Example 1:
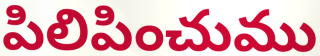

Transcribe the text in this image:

పిలిపించుము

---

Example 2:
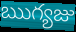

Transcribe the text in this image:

ఋగ్యజు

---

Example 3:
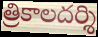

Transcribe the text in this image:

త్రికాలదర్శి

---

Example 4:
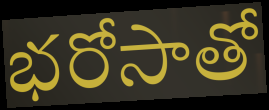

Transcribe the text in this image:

భరోసాతో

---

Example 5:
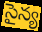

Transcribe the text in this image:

సైన్య